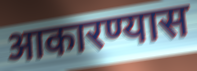
आकारण्यास